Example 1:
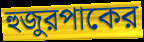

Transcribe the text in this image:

হুজুরপাকের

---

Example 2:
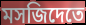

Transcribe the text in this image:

মসজিদেতে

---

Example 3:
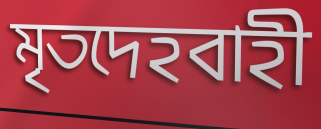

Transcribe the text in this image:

মৃতদেহবাহী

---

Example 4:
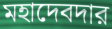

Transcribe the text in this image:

মহাদেবদার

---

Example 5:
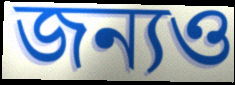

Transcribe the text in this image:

জন্যও